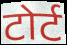
टोर्ट